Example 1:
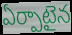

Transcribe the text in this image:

ఏర్పాటైన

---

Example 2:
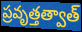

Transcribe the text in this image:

ప్రవృత్తత్వాత్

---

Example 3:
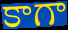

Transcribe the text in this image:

కాగా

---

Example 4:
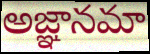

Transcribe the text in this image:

అజ్ఞానమా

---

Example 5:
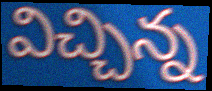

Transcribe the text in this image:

విచ్చిన్న